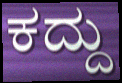
ಕದ್ದು